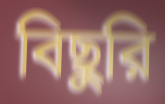
বিছুরি